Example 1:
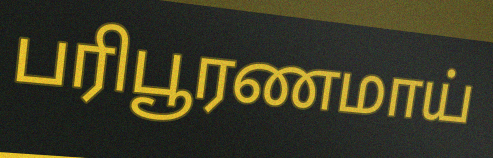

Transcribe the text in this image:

பரிபூரணமாய்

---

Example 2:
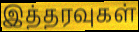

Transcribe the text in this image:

இத்தரவுகள்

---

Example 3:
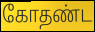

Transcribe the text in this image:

கோதண்ட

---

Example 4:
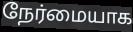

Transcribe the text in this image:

நேர்மையாக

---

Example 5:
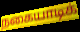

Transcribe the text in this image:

நகையாடிக்